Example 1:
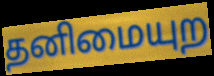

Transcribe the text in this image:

தனிமையுற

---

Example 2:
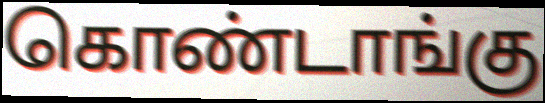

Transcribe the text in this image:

கொண்டாங்கு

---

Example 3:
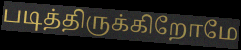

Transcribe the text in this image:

படித்திருக்கிறோமே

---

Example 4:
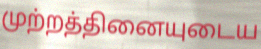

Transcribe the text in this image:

முற்றத்தினையுடைய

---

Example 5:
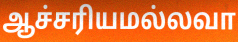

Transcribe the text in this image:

ஆச்சரியமல்லவா